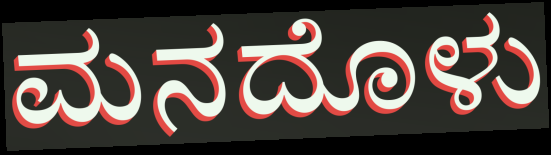
ಮನದೊಳು